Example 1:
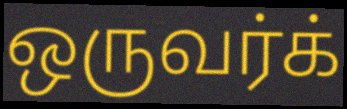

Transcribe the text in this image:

ஒருவர்க்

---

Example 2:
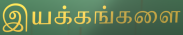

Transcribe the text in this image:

இயக்கங்களை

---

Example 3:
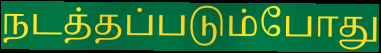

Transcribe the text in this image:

நடத்தப்படும்போது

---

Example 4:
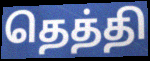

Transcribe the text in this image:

தெத்தி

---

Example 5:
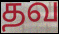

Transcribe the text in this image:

தவ